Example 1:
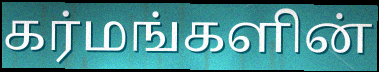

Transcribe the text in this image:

கர்மங்களின்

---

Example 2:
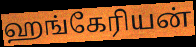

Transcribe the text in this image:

ஹங்கேரியன்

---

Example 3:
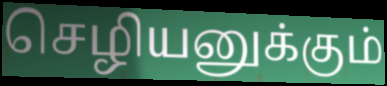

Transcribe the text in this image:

செழியனுக்கும்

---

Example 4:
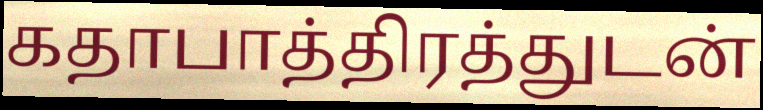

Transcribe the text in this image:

கதாபாத்திரத்துடன்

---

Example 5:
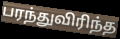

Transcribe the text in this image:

பரந்துவிரிந்த